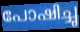
പോഷിച്ചു